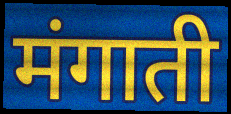
मंगाती